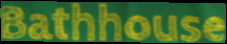
Bathhouse